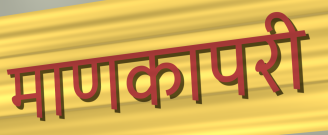
माणकापरी